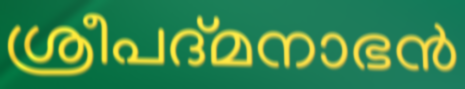
ശ്രീപദ്മനാഭൻ